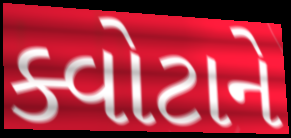
ક્વોટાને